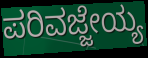
ಪರಿವಜ್ಜೇಯ್ಯ